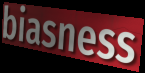
biasness